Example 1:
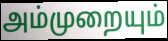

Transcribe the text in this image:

அம்முறையும்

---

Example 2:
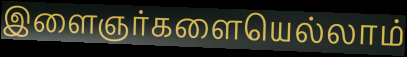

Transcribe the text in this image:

இளைஞர்களையெல்லாம்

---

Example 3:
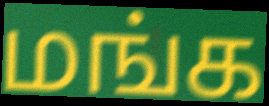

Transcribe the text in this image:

மங்க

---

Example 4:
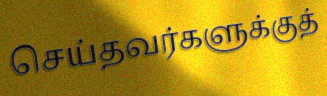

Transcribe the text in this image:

செய்தவர்களுக்குத்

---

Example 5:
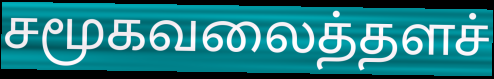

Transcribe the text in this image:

சமூகவலைத்தளச்